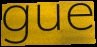
gue